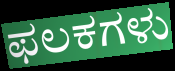
ಫಲಕಗಳು